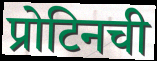
प्रोटिनची